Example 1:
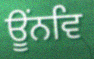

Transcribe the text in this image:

ਊਂਨਵਿ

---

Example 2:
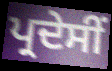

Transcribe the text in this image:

ਪ੍ਰਦੇਸੀਂ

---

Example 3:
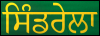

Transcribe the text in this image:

ਸਿੰਡਰੇਲਾ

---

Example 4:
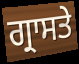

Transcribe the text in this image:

ਗ੍ਰਾਸਤੇ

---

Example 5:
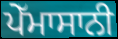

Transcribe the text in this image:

ਪੇੱਮਾਸਾਨੀ